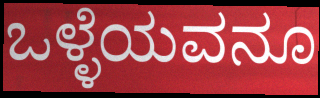
ಒಳ್ಳೆಯವನೂ